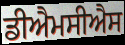
ਡੀਐਮਸੀਐਸ